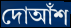
দোআঁশ